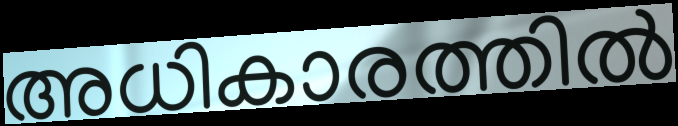
അധികാരത്തിൽ